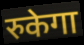
रुकेगा